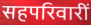
सहपरिवारीं